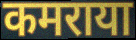
कमराया